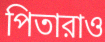
পিতারাও